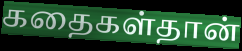
கதைகள்தான்